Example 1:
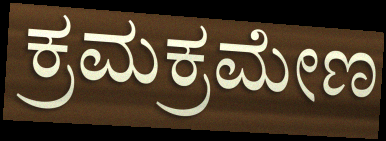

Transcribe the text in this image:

ಕ್ರಮಕ್ರಮೇಣ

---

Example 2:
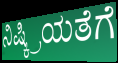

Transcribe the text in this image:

ನಿಷ್ಕ್ರಿಯತೆಗೆ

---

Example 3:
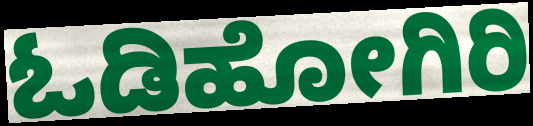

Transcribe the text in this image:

ಓಡಿಹೋಗಿರಿ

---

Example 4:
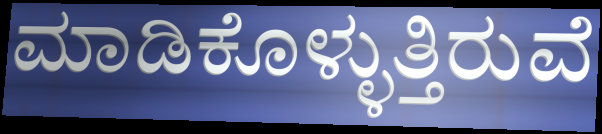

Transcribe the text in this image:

ಮಾಡಿಕೊಳ್ಳುತ್ತಿರುವೆ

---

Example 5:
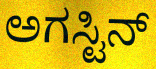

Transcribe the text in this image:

ಅಗಸ್ಟಿನ್